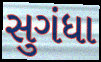
સુગંધા